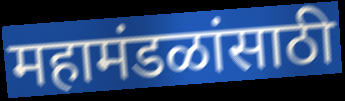
महामंडळांसाठी